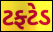
ટફ્ટેડ